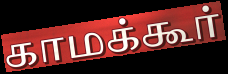
காமக்கூர்